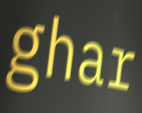
ghar